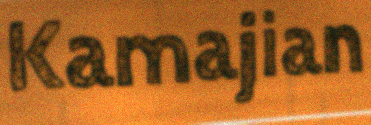
Kamajian